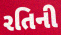
રતિની